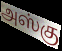
அஸ்கு